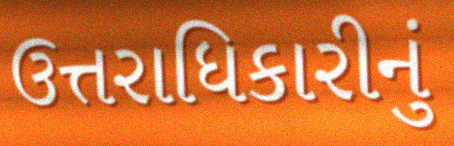
ઉત્તરાધિકારીનું